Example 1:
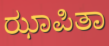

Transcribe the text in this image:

ಝಾಪಿತಾ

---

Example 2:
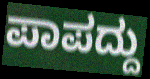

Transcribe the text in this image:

ಪಾಪದ್ದು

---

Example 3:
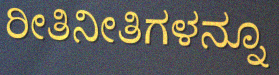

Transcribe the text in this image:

ರೀತಿನೀತಿಗಳನ್ನೂ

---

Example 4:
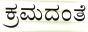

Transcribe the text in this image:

ಕ್ರಮದಂತೆ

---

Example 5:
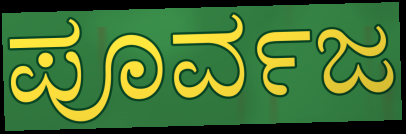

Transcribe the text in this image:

ಪೂರ್ವಜ